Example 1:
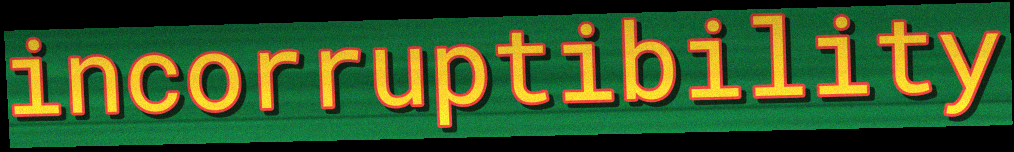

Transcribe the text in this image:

incorruptibility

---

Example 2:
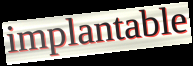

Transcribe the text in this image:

implantable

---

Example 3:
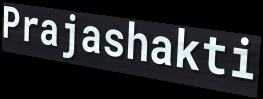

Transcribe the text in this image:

Prajashakti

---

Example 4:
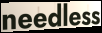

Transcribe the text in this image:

needless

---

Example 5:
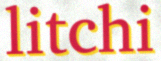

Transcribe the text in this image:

litchi